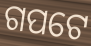
ଗପଟେ